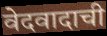
वेदवादाची